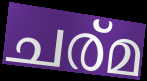
ചര്മ